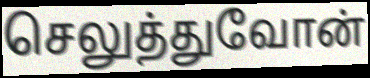
செலுத்துவோன்